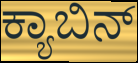
ಕ್ಯಾಬಿನ್